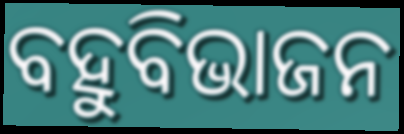
ବହୁବିଭାଜନ